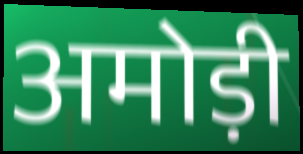
अमोड़ी